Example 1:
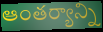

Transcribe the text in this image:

ఆంతర్యాన్ని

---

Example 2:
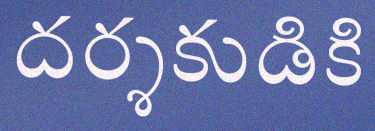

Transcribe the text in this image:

దర్శకుడికి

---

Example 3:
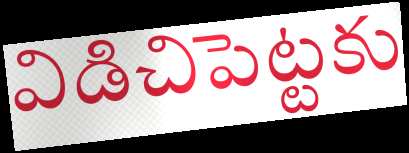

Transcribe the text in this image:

విడిచిపెట్టకు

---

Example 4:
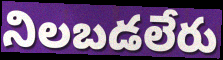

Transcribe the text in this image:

నిలబడలేరు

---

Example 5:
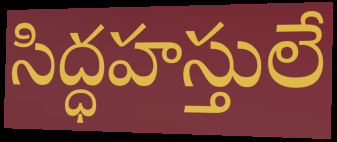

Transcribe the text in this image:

సిద్ధహస్తులే